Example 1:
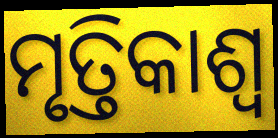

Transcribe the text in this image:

ମୃତ୍ତିକାଶ୍ୱ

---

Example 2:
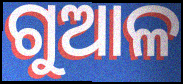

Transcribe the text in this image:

ଗୁଆଳ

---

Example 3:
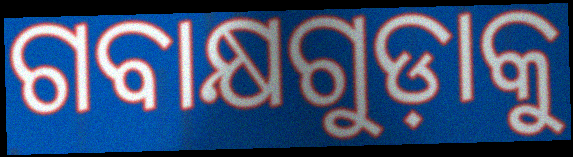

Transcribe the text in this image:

ଗବାକ୍ଷଗୁଡ଼ାକୁ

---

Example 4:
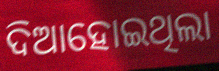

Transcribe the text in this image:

ଦିଆହୋଇଥିଲା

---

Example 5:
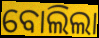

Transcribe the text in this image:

ବୋଲିଲା